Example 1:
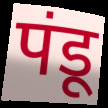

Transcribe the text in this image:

पंडू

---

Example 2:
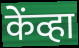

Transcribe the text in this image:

केंव्हा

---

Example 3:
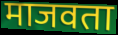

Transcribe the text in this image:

माजवता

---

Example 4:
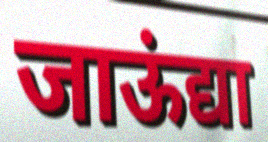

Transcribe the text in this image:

जाऊंद्या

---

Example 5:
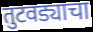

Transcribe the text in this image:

तुटवड्याचा